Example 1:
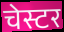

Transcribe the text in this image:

चेस्टर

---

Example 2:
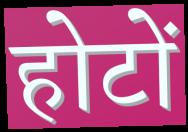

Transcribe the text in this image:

होटों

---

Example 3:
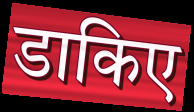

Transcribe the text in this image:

डाकिए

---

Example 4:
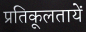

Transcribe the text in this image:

प्रतिकूलतायें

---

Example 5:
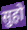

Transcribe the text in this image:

सुहो